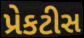
પ્રેકટીસ